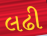
લઢી